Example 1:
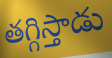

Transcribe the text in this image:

తగ్గిస్తాడు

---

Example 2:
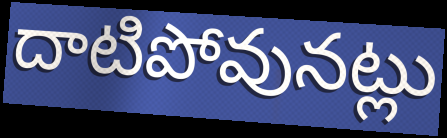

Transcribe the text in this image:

దాటిపోవునట్లు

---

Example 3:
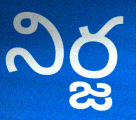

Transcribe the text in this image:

నిర్జ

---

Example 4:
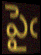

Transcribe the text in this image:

పైఁ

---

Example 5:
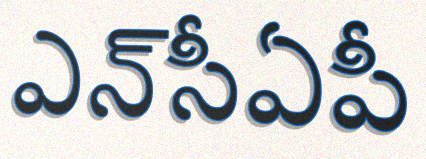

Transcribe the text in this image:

ఎన్‌సీఏపీ